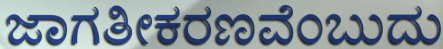
ಜಾಗತೀಕರಣವೆಂಬುದು